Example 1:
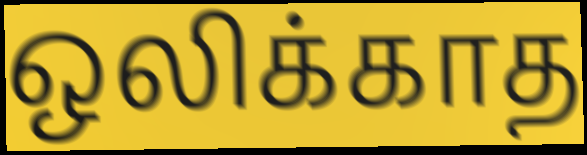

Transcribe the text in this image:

ஒலிக்காத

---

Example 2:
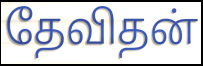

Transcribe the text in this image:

தேவிதன்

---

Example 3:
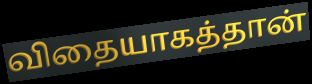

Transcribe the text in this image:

விதையாகத்தான்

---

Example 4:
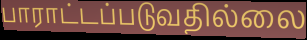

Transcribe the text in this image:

பாராட்டப்படுவதில்லை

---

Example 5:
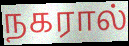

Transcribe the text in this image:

நகரால்